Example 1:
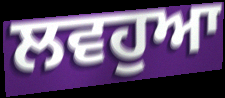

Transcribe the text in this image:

ਲਵਹੁਆ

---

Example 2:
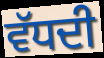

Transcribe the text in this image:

ਵੱਧਦੀ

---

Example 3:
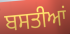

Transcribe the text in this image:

ਬਸਤੀਆਂ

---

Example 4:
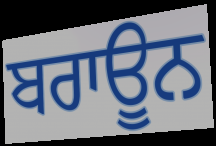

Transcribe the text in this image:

ਬਰਾਊਨ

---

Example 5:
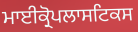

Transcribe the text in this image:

ਮਾਈਕ੍ਰੋਪਲਾਸਟਿਕਸ